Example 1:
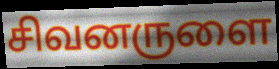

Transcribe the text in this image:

சிவனருளை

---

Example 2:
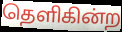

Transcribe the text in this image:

தெளிகின்ற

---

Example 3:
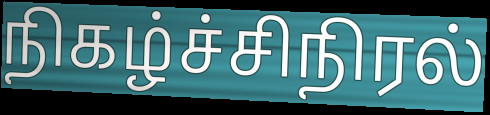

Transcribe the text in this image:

நிகழ்ச்சிநிரல்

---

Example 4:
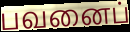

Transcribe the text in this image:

பவனைப்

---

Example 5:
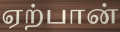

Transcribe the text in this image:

ஏற்பான்